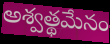
అశ్వత్థమేనం